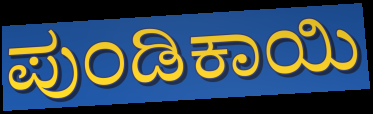
ಪುಂಡಿಕಾಯಿ